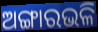
ଅଙ୍ଗାରଭଳି